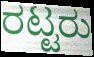
ರಟ್ಟರು